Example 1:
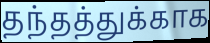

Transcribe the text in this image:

தந்தத்துக்காக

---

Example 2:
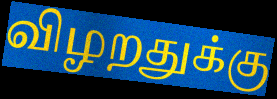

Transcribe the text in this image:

விழறதுக்கு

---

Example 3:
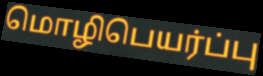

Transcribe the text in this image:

மொழிபெயர்ப்பு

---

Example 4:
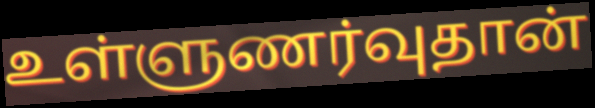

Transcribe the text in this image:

உள்ளுணர்வுதான்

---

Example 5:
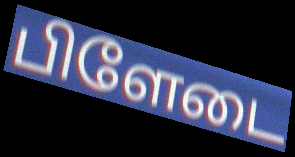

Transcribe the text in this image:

பிளேடை